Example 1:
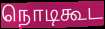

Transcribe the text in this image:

நொடிகூட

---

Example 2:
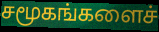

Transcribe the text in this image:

சமூகங்களைச்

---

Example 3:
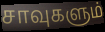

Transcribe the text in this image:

சாவுகளும்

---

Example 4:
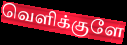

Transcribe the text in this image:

வெளிக்குளே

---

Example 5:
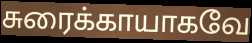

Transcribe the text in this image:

சுரைக்காயாகவே